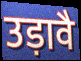
उड़ावै